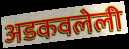
अडकवलेली